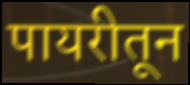
पायरीतून